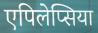
एपिलेप्सिया